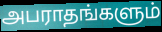
அபராதங்களும்